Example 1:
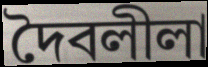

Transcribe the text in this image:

দৈবলীলা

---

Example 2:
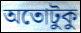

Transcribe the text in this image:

অতোটুকু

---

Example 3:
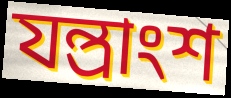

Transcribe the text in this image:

যন্ত্রাংশ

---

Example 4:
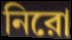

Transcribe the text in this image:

নিরো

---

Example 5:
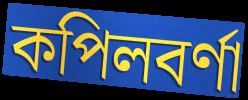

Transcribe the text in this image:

কপিলবর্ণা